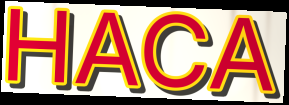
HACA